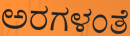
ಅರಗಳಂತೆ